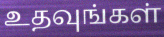
உதவுங்கள்